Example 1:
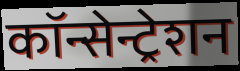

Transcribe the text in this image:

कॉन्सेन्ट्रेशन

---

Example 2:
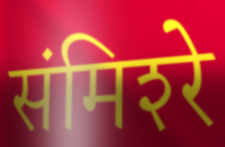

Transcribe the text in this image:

संमिश्रे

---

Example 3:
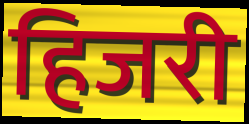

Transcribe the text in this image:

हिजरी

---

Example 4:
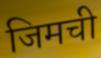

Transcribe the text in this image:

जिमची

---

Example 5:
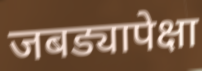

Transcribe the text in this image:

जबड्यापेक्षा